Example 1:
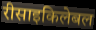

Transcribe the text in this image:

रीसाइकिलेबल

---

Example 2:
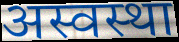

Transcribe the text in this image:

अस्वस्था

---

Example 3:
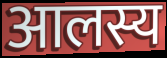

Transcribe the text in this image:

आलस्‍य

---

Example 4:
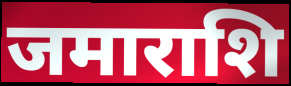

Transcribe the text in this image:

जमाराशि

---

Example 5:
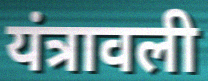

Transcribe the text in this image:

यंत्रावली